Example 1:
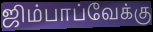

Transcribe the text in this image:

ஜிம்பாப்வேக்கு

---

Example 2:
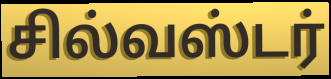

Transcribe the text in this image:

சில்வஸ்டர்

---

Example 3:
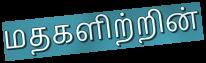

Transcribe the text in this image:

மதகளிற்றின்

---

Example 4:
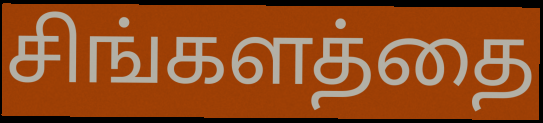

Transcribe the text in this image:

சிங்களத்தை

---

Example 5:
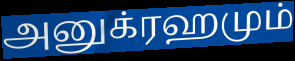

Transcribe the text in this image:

அனுக்ரஹமும்